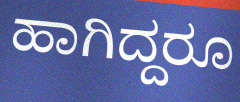
ಹಾಗಿದ್ದರೂ